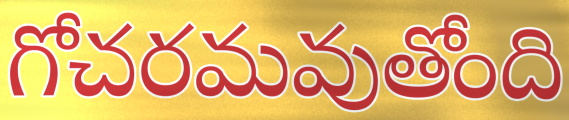
గోచరమవుతోంది